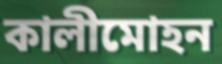
কালীমোহন